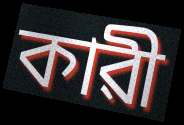
কাৱী